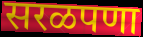
सरळपणा